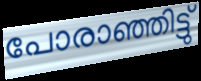
പോരാഞ്ഞിട്ടു്